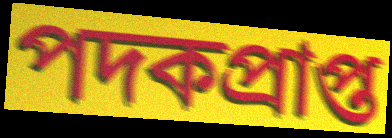
পদকপ্রাপ্ত